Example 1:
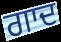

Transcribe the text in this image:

ਗਾਦ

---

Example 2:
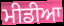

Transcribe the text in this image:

ਮੀਡੀਆ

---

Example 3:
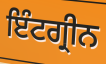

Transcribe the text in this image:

ਇੰਟਗ੍ਰੀਨ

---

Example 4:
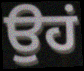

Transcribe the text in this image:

ਉਹਂ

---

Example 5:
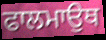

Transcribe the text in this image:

ਫਾਲਮਾਉਥ